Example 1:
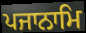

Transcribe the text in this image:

ਪਜਾਨਾਮਿ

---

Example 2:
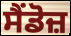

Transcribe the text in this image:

ਸੈਂਡੋਜ਼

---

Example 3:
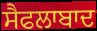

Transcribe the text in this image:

ਸੈਫਲਾਬਾਦ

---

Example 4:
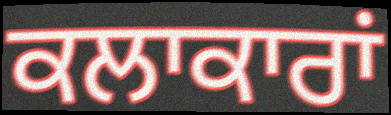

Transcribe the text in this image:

ਕਲਾਕਾਰਾਂ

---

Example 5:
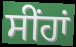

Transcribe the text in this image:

ਸੀਂਹਾਂ